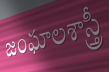
జంఘాలశాస్త్రీ